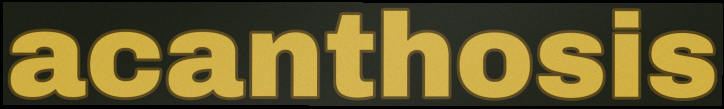
acanthosis